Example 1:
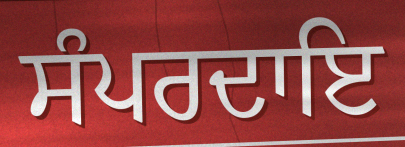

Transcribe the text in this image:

ਸੰਪਰਦਾਇ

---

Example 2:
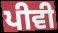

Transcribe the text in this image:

ਪੀਵੀ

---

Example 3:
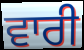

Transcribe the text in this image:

ਵਾਰੀ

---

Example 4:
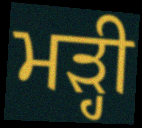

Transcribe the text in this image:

ਮੜ੍ਹੀ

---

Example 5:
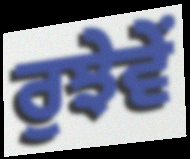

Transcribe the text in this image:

ਰੁਝੇਵੇਂ